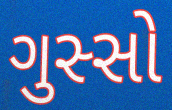
ગુસ્સો